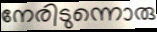
നേരിടുന്നൊരു